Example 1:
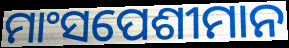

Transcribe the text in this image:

ମାଂସପେଶୀମାନ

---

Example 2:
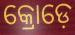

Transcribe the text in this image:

କ୍ରୋଡ଼େ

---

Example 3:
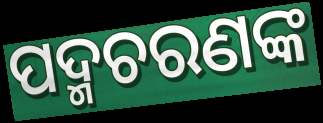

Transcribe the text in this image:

ପଦ୍ମଚରଣଙ୍କ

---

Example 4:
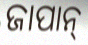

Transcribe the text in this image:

ଜାପାନ୍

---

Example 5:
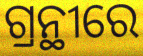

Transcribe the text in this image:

ଗ୍ରନ୍ଥୀରେ